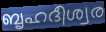
ബൃഹദീശ്വര